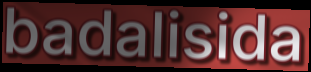
badalisida